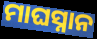
ମାଘସ୍ନାନ